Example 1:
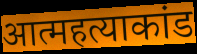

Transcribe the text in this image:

आत्महत्याकांड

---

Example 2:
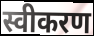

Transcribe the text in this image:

स्वीकरण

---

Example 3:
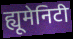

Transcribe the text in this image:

ह्यूमेनिटी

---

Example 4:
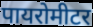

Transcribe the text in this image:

पायरोमीटर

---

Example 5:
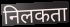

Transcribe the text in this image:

निलकता